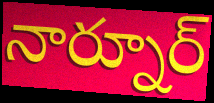
నార్నూర్